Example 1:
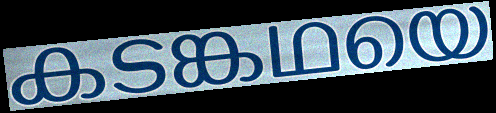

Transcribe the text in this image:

കടങ്കഥയെ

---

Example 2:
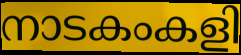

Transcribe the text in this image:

നാടകംകളി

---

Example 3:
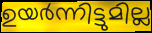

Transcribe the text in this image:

ഉയർന്നിട്ടുമില്ല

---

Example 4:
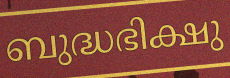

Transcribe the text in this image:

ബുദ്ധഭിക്ഷു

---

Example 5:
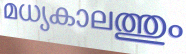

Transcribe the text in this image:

മധ്യകാലത്തും